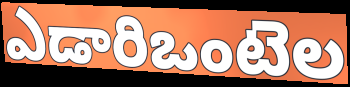
ఎడారిఒంటెల